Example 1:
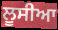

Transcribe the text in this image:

ਲੂਸੀਆ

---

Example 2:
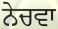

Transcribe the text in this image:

ਨੇਚਵਾ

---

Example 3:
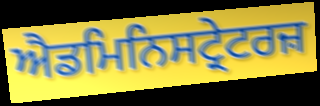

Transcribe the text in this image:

ਐਡਮਿਨਿਸਟ੍ਰੇਟਰਜ਼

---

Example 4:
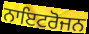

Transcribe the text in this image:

ਨਾਇਟਰੋਜਨ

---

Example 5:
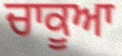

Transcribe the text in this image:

ਚਾਕੂਆ